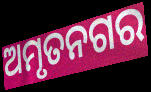
ଅମୃତନଗର